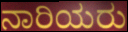
ನಾರಿಯರು